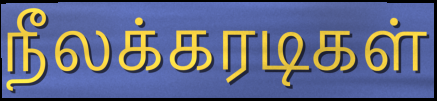
நீலக்கரடிகள்